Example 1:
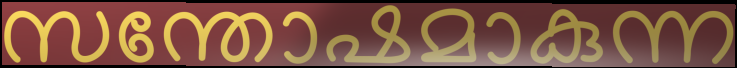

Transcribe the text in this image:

സന്തോഷമാകുന്ന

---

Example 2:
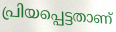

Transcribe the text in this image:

പ്രിയപ്പെട്ടതാണ്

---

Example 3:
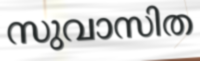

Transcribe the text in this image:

സുവാസിത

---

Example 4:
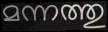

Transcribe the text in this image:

മന്നത്തു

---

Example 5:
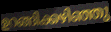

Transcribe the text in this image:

ഉറങ്ങിക്കഴിഞ്ഞു